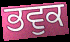
ਭਵੁਕ